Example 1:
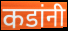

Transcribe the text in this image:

कडांनी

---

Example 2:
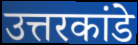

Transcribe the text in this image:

उत्तरकांडे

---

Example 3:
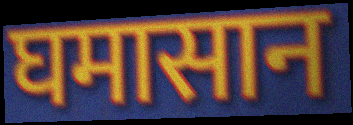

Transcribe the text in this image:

घमासान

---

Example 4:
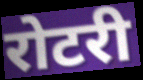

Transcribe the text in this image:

रोटरी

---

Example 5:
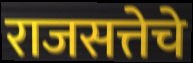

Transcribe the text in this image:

राजसत्तेचे